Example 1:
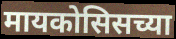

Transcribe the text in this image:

मायकोसिसच्या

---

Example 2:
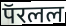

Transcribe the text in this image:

पॅरलल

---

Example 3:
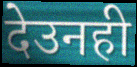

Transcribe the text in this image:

देउनही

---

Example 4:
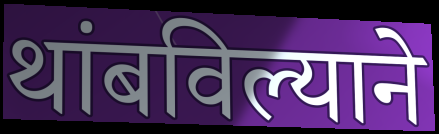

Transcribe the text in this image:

थांबविल्याने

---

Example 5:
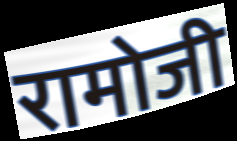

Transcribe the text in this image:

रामोजी